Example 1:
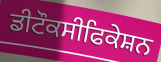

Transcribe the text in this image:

ਡੀਟੌਕਸੀਫਿਕੇਸ਼ਨ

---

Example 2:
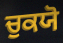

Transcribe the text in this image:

ਚੁਕਯੋ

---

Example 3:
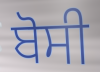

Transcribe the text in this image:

ਬੋਸੀ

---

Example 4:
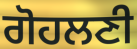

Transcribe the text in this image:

ਗੋਹਲਣੀ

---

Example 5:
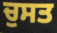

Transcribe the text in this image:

ਚੁਸਤ